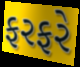
ફરફરે